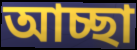
আচ্ছা